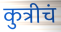
कुत्रीचं